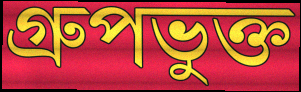
গ্রুপভুক্ত